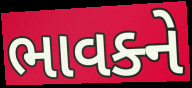
ભાવક્ને